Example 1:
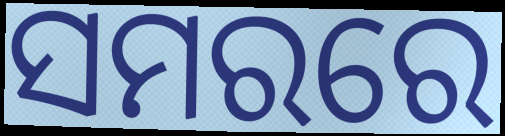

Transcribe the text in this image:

ସମରରେ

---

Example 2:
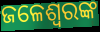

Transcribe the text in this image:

ଜଳେଶ୍ଵରଙ୍କ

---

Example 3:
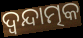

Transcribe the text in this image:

ଦ୍ଵନ୍ଦାତ୍ମକ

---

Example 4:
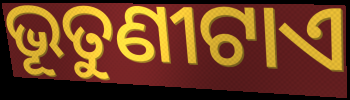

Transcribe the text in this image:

ଭୂତୁଣୀଟାଏ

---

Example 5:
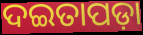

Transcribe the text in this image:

ଦଇତାପଡ଼ା